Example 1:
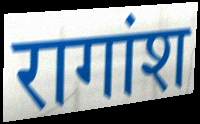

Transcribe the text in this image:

रागांश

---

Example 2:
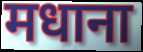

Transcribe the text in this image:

मधाना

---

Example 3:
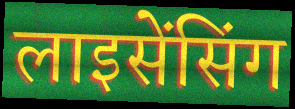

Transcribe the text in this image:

लाइसेंसिंग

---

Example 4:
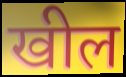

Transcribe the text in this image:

खील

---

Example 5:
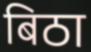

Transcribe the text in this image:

बिठा